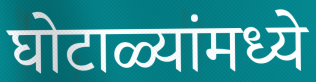
घोटाळ्यांमध्ये